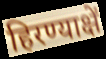
हिरण्याक्षें